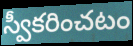
స్వీకరించటం